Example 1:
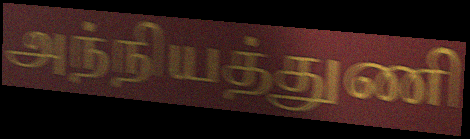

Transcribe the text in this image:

அந்நியத்துணி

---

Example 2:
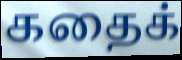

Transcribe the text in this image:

கதைக்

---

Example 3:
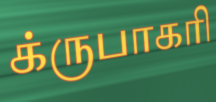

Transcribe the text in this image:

க்ருபாகரி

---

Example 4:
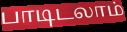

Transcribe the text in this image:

பாடிடலாம்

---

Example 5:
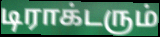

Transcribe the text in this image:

டிராக்டரும்